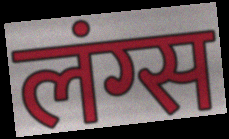
लंग्स